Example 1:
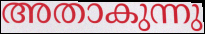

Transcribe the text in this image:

അതാകുന്നു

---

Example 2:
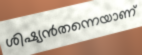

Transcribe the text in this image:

ശിഷ്യൻതന്നെയാണ്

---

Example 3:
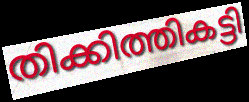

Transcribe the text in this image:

തിക്കിത്തികട്ടി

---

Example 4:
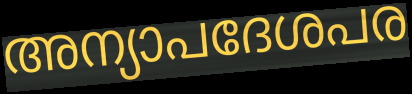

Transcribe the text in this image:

അന്യാപദേശപര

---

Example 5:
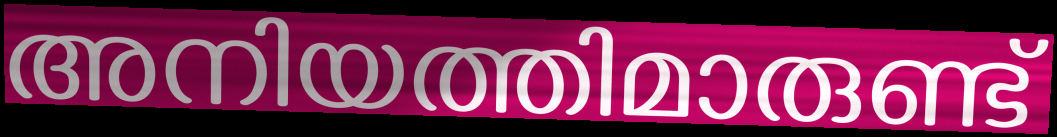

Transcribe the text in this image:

അനിയത്തിമാരുണ്ട്